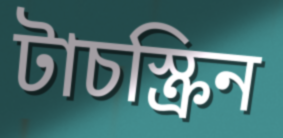
টাচস্ক্রিন